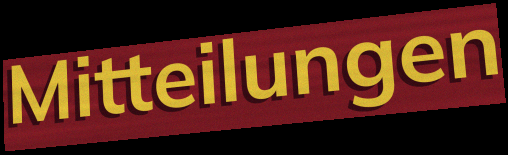
Mitteilungen